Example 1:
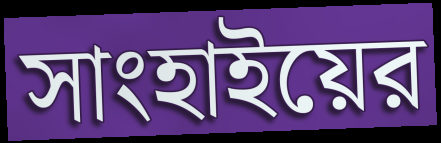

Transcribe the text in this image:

সাংহাইয়ের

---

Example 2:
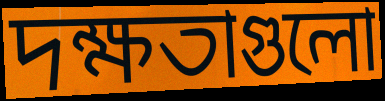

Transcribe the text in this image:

দক্ষতাগুলো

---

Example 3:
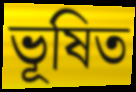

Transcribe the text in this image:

ভূষিত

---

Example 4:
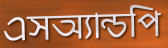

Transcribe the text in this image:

এসঅ্যান্ডপি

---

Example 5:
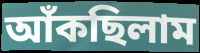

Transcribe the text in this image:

আঁকছিলাম